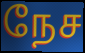
நேச